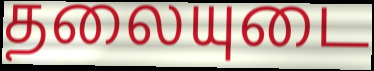
தலையுடை